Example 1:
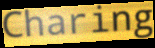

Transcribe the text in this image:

Charing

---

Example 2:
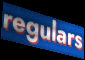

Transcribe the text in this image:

regulars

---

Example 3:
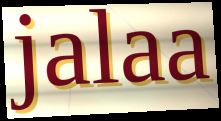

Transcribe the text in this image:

jalaa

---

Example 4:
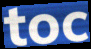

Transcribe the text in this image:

toc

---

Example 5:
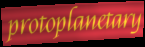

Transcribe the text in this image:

protoplanetary